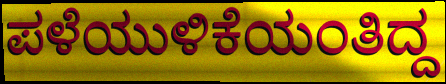
ಪಳೆಯುಳಿಕೆಯಂತಿದ್ದ